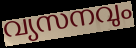
വ്യസനവും